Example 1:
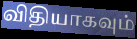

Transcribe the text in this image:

விதியாகவும்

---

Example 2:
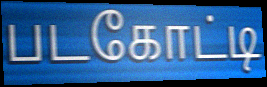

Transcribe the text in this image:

படகோட்டி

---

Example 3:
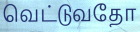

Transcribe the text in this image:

வெட்டுவதோ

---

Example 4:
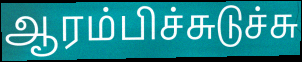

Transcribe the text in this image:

ஆரம்பிச்சுடுச்சு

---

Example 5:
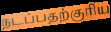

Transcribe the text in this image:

நடப்பதற்குரிய